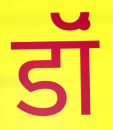
डॉं